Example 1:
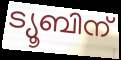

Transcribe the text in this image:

ട്യൂബിന്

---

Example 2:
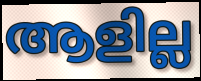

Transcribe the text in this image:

ആളില്ല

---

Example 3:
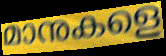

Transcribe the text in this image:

മാനുകളെ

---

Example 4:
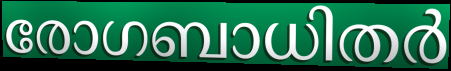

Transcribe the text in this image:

രോഗബാധിതർ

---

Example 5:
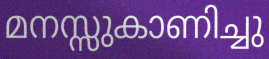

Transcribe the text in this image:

മനസ്സുകാണിച്ചു